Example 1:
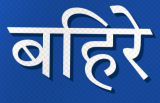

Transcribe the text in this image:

बहिरे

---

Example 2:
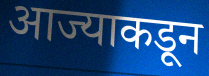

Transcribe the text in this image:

आज्याकडून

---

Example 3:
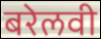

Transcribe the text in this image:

बरेलवी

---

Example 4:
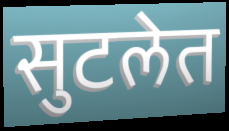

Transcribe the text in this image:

सुटलेत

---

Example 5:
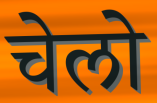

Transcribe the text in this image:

चेलो